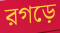
রগড়ে